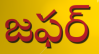
జఫర్